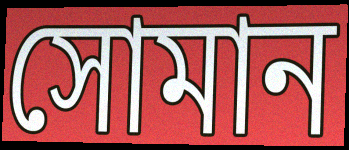
সোমান